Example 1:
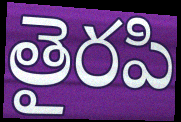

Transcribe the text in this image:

తైరపి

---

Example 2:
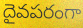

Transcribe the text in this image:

దైవపరంగా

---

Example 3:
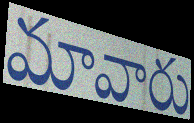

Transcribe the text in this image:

మావారు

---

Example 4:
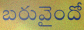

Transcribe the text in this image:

బరువైందో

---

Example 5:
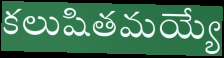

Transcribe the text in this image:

కలుషితమయ్యే